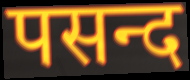
पसन्द